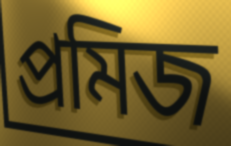
প্রমিজ